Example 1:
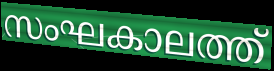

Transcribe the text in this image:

സംഘകാലത്ത്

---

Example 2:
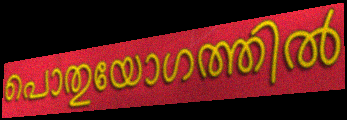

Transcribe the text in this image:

പൊതുയോഗത്തിൽ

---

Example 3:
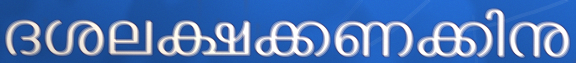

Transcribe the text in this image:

ദശലക്ഷക്കണക്കിനു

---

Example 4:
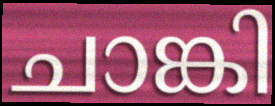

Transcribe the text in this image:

ചാങ്കി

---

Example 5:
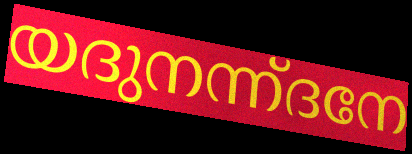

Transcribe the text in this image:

യദുനന്ന്ദനേ